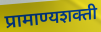
प्रामाण्यशक्ती